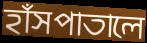
হাঁসপাতালে